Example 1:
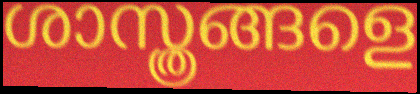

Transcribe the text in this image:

ശാസ്ത്രങ്ങളെ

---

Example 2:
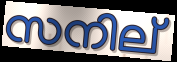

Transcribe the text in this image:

സനില്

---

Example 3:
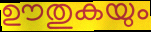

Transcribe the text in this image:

ഊതുകയും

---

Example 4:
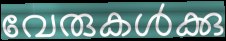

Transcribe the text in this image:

വേരുകൾക്കു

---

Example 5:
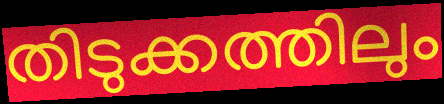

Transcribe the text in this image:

തിടുക്കത്തിലും